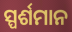
ସ୍ପର୍ଶମାନ